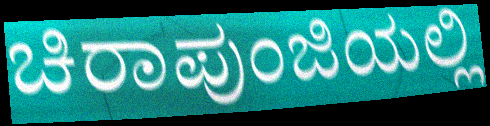
ಚಿರಾಪುಂಜಿಯಲ್ಲಿ